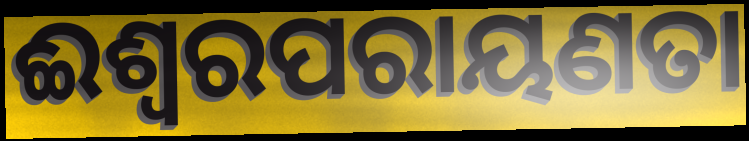
ଈଶ୍ୱରପରାୟଣତା